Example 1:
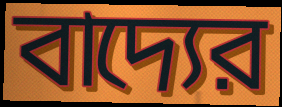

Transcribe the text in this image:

বাদ্যের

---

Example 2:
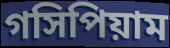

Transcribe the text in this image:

গসিপিয়াম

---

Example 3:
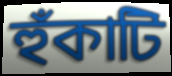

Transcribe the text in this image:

হুঁকাটি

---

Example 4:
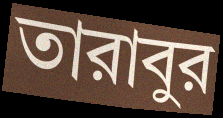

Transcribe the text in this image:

তারাবুর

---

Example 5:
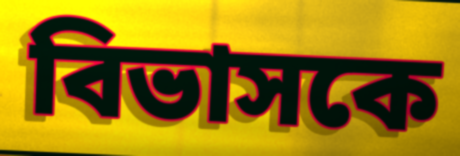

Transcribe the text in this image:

বিভাসকে